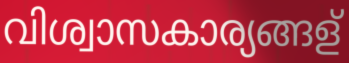
വിശ്വാസകാര്യങ്ങള്